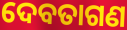
ଦେବତାଗଣ